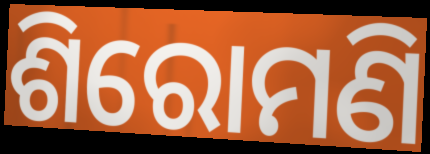
ଶିରୋମଣି